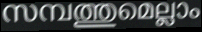
സമ്പത്തുമെല്ലാം